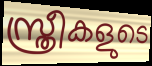
സ്ത്രീകളുടെ